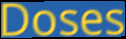
Doses